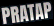
PRATAP